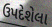
ઉપદેશેલા